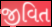
જીવિત